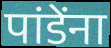
पांडेंना